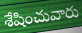
శేషించువారు